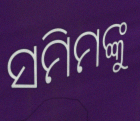
ସମିମଙ୍କୁ